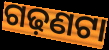
ଗଢ଼ଣଟା